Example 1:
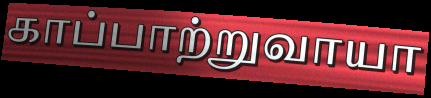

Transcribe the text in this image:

காப்பாற்றுவாயா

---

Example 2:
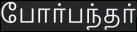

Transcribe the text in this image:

போர்பந்தர்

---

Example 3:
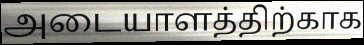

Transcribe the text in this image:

அடையாளத்திற்காக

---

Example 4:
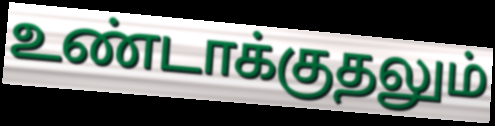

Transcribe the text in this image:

உண்டாக்குதலும்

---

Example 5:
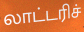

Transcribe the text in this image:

லாட்டரிச்